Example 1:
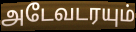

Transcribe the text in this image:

அடேவடரயும்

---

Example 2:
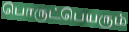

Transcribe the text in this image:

பொருட்பெயரும்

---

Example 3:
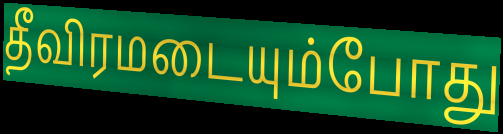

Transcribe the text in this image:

தீவிரமடையும்போது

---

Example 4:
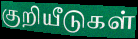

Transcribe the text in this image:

குறியீடுகள்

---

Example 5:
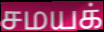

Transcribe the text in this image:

சமயக்